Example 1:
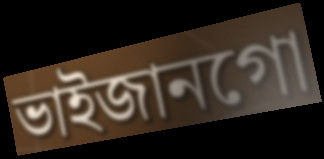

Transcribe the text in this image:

ভাইজানগো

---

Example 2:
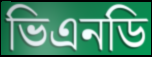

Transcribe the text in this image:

ভিএনডি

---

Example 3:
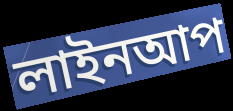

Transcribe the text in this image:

লাইনআপ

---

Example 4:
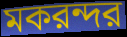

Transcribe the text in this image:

মকরন্দর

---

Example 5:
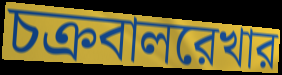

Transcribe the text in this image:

চক্রবালরেখার